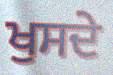
ਖੁਸਦੇ